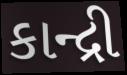
કાન્દ્રી